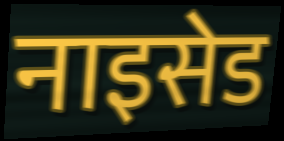
नाइसेड